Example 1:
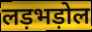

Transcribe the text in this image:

लड़भड़ोल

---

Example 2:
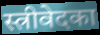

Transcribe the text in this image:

स्त्रीवेदका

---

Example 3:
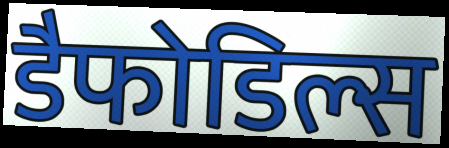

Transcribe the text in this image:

डैफोडिल्स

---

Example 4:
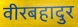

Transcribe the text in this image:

वीरबहादुर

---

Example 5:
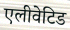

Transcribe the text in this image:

एलीवेटिड